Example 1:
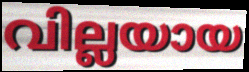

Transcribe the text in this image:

വില്ലയായ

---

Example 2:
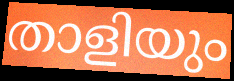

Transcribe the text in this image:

താളിയും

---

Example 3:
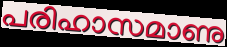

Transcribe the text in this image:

പരിഹാസമാണു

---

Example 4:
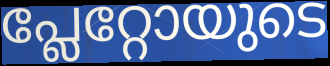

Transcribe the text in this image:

പ്ലേറ്റോയുടെ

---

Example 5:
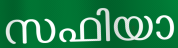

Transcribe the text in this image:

സഫിയാ